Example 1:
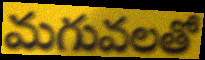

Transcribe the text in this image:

మగువలతో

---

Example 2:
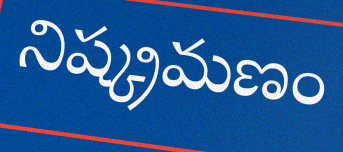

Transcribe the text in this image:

నిష్క్రమణం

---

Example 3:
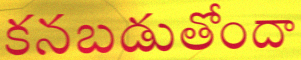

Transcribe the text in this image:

కనబడుతోందా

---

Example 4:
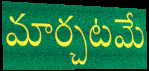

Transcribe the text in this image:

మార్చటమే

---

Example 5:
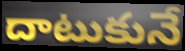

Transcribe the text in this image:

దాటుకునే